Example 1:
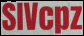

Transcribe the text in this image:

SIVcpz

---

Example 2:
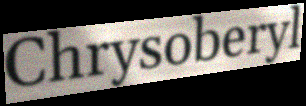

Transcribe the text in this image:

Chrysoberyl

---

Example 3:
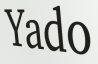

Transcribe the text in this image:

Yado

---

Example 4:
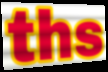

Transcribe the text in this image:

ths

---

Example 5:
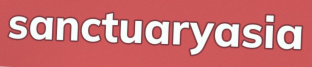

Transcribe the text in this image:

sanctuaryasia